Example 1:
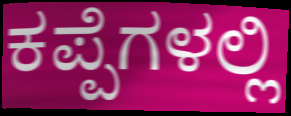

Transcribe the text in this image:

ಕಪ್ಪೆಗಳಲ್ಲಿ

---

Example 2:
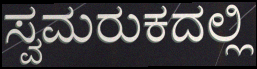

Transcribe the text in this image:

ಸ್ವಮರುಕದಲ್ಲಿ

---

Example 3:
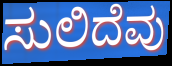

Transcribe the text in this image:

ಸುಲಿದೆವು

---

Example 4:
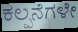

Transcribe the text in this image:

ಕಲ್ಪನೆಗಳೇ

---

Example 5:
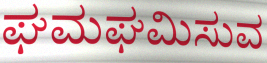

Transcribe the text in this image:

ಘಮಘಮಿಸುವ